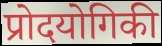
प्रोदयोगिकी